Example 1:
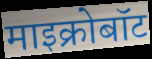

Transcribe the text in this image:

माइक्रोबॉट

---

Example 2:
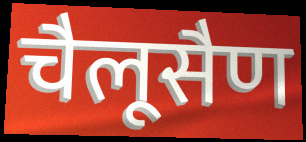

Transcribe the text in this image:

चैलूसैण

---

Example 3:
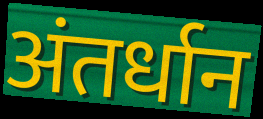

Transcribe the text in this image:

अंतर्धान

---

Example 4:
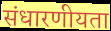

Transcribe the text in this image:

संधारणीयता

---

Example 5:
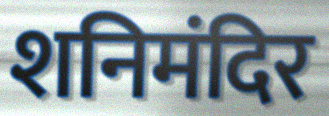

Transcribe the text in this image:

शनिमंदिर